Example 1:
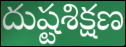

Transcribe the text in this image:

దుష్టశిక్షణ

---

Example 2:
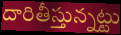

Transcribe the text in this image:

దారితీస్తున్నట్టు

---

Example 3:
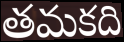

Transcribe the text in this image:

తమకది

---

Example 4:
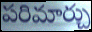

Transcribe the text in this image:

పరిమార్చు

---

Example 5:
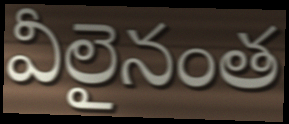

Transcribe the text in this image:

వీలైనంత